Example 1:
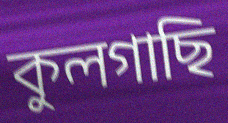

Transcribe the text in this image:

কুলগাছি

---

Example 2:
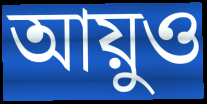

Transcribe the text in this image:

আয়ুও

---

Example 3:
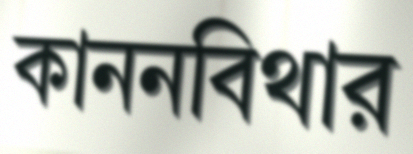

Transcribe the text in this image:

কাননবিথার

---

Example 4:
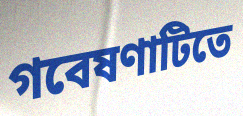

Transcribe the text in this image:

গবেষণাটিতে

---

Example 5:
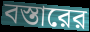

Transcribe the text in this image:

বস্তারের